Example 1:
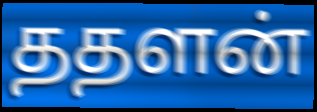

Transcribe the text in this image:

ததளன்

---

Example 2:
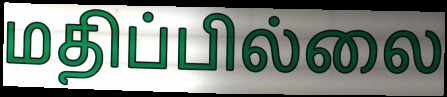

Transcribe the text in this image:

மதிப்பில்லை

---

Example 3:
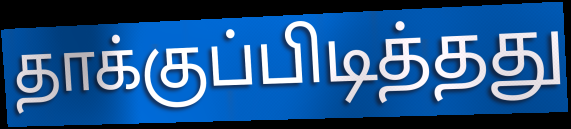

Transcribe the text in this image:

தாக்குப்பிடித்தது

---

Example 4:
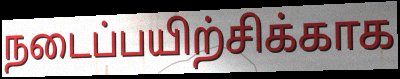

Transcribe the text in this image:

நடைப்பயிற்சிக்காக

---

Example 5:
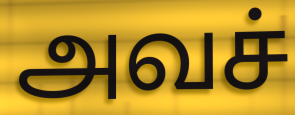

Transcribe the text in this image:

அவச்